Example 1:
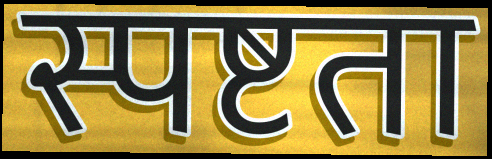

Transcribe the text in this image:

स्पष्टता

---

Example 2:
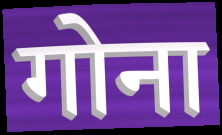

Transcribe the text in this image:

गोना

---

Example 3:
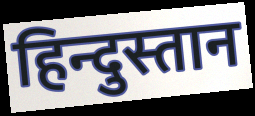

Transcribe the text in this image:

हिन्दुस्तान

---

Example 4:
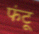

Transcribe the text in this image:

फंटू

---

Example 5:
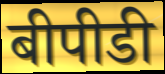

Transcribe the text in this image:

बीपीडी